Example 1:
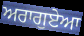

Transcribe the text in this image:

ਅਰਾਗੁਏਆ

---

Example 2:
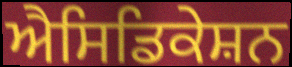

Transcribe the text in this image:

ਐਸਿਡਿਕੇਸ਼ਨ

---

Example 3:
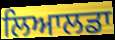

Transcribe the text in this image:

ਲਿਆਲਡਾ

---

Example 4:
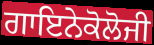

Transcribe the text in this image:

ਗਾਇਨੇਕੋਲੋਜੀ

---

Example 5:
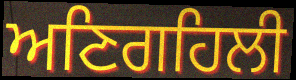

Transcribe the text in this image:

ਅਣਿਗਹਿਲੀ